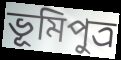
ভূমিপুত্ৰ